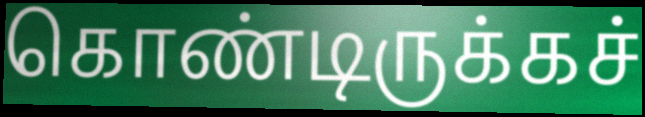
கொண்டிருக்கச்